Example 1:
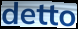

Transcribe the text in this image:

detto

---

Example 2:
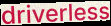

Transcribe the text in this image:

driverless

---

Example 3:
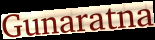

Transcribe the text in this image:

Gunaratna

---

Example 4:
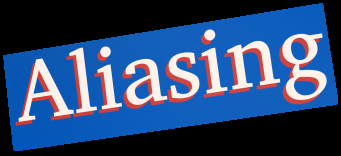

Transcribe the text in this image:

Aliasing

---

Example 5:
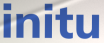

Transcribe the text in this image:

initu